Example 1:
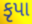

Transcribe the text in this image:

કૃપા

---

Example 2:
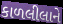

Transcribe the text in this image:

કાળલીલાને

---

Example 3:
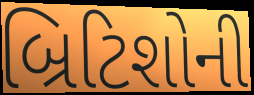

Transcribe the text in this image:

બ્રિટિશોની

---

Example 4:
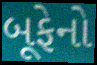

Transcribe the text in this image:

બૂફેનો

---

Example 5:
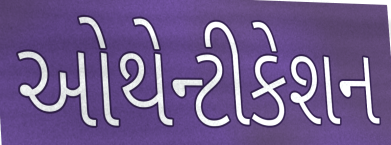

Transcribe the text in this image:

ઓથેન્ટીકેશન